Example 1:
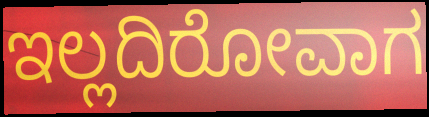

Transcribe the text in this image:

ಇಲ್ಲದಿರೋವಾಗ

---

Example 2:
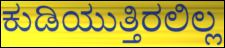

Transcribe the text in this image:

ಕುಡಿಯುತ್ತಿರಲಿಲ್ಲ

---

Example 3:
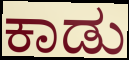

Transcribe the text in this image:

ಕಾಡು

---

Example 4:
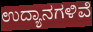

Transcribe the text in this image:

ಉದ್ಯಾನಗಳಿವೆ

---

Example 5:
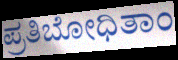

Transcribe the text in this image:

ಪ್ರತಿಬೋಧಿತಾಂ